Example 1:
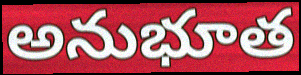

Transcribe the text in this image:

అనుభూత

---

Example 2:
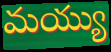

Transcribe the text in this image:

మయ్యు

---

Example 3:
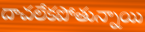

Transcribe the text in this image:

దాచలేకపోతున్నాయి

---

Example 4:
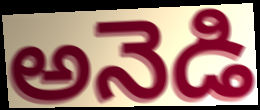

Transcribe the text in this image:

అనెడి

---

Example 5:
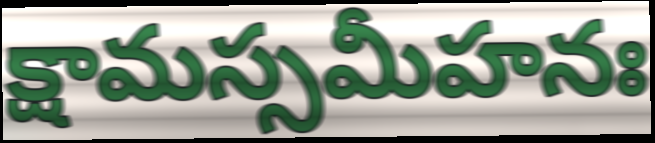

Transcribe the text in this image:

క్షామస్సమీహనః